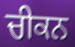
ਚੀਕਨ